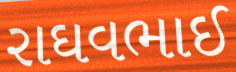
રાઘવભાઈ